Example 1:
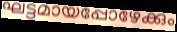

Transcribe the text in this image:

ഘട്ടമായപ്പോഴേക്കും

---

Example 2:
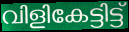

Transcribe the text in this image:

വിളികേട്ടിട്ട്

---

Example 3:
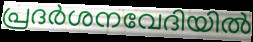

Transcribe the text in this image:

പ്രദർശനവേദിയിൽ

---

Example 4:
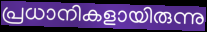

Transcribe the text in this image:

പ്രധാനികളായിരുന്നു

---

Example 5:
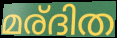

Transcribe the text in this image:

മര്ദിത